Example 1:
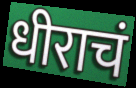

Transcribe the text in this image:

धीराचं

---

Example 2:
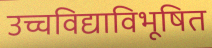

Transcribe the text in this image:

उच्चविद्याविभूषित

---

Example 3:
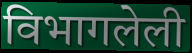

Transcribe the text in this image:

विभागलेली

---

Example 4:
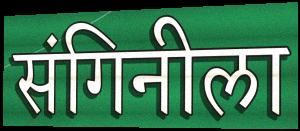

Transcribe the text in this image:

संगिनीला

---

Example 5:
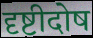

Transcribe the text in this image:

दृष्टीदोष